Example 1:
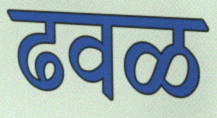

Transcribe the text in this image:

ढवळ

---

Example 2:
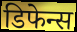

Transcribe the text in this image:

डिफेन्स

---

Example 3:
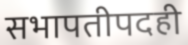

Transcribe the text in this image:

सभापतीपदही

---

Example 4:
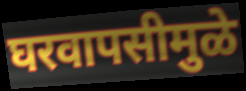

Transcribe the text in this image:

घरवापसीमुळे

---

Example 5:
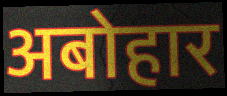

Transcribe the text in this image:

अबोहार